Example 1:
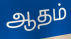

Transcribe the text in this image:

ஆதம்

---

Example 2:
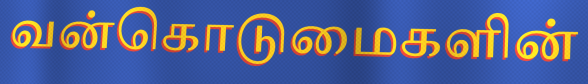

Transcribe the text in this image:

வன்கொடுமைகளின்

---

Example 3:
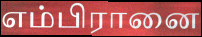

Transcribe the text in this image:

எம்பிரானை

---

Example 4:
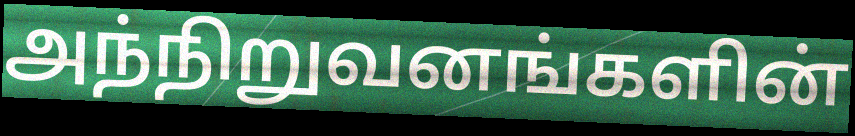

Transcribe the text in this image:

அந்நிறுவனங்களின்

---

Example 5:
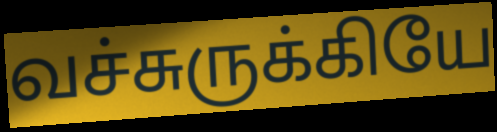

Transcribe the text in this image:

வச்சுருக்கியே